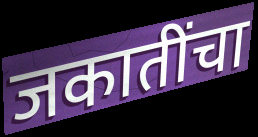
जकातींचा